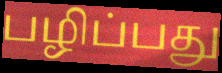
பழிப்பது